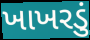
ખાખરડું